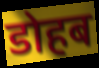
डोहब